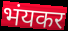
भंयकर